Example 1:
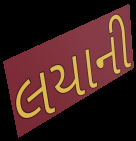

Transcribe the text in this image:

લયાની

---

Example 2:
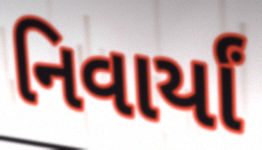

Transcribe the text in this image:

નિવાર્યાં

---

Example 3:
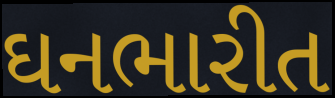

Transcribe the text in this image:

ઘનભારીત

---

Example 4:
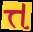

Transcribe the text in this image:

ત્ત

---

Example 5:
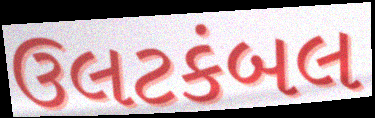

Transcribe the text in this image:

ઉલટકંબલ